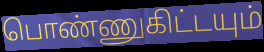
பொண்ணுகிட்டயும்